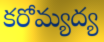
కరోమ్యద్య